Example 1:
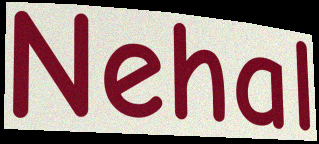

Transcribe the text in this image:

Nehal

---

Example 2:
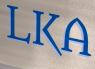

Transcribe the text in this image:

LKA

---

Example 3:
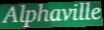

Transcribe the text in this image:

Alphaville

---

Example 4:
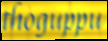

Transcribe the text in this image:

thoguppu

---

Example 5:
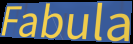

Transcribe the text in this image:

Fabula